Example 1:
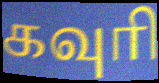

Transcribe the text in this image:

கவுரி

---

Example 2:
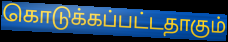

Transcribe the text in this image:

கொடுக்கப்பட்டதாகும்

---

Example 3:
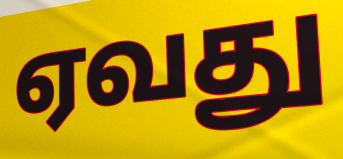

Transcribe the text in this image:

ஏவது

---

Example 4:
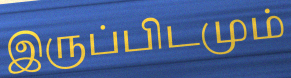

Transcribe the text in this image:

இருப்பிடமும்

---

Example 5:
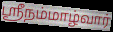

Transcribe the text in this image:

ஸ்ரீநம்மாழ்வார்